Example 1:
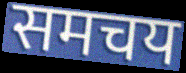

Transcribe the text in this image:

समचय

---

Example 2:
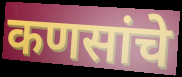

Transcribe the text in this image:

कणसांचे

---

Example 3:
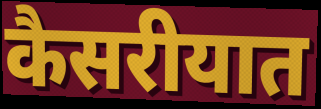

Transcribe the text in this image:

कैसरीयात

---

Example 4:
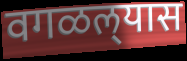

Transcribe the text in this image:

वगळल्यास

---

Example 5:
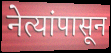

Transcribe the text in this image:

नेत्यांपासून